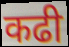
कढी